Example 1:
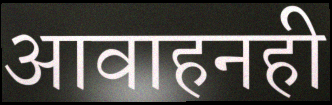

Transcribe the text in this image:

आवाहनही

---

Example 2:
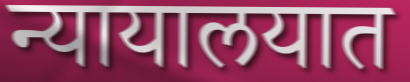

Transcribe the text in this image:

न्यायालयात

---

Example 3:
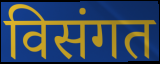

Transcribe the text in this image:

विसंगत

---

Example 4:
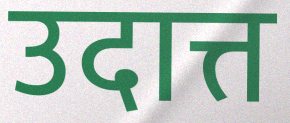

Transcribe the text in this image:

उदात्त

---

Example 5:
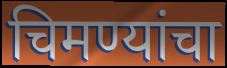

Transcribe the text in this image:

चिमण्यांचा